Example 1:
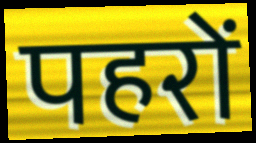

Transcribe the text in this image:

पहरों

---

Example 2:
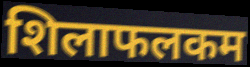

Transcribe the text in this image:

शिलाफलकम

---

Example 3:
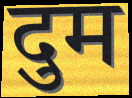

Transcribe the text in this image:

दुम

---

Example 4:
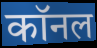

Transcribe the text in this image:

कॉनल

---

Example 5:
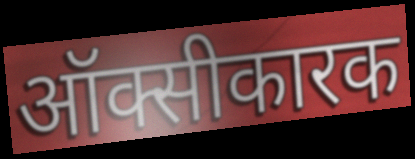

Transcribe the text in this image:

ऑक्सीकारक